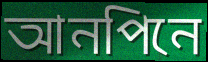
আনপিনে